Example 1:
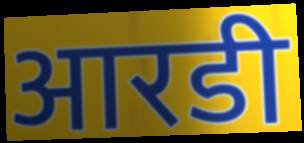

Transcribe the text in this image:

आरडी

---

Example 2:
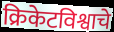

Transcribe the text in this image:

क्रिकेटविश्वाचे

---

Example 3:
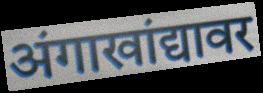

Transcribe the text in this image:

अंगाखांद्यावर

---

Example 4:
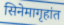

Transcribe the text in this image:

सिनेमागृहांत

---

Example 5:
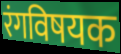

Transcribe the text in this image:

रंगविषयक